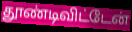
தூண்டிவிட்டேன்